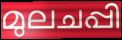
മുലചപ്പി